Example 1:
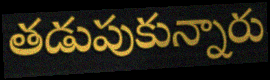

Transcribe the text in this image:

తడుపుకున్నారు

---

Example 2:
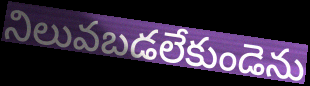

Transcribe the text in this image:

నిలువబడలేకుండెను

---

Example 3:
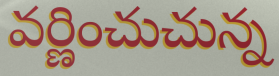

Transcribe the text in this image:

వర్ణించుచున్న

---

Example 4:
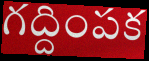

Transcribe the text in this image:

గద్దింపక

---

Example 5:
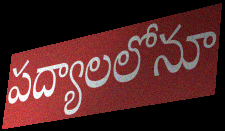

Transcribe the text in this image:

పద్యాలలోనూ